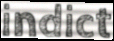
indict